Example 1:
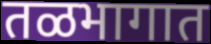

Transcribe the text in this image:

तळभागात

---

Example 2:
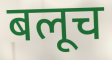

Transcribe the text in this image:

बलूच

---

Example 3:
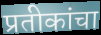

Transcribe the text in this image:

प्रतीकांचा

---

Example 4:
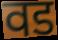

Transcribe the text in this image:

वड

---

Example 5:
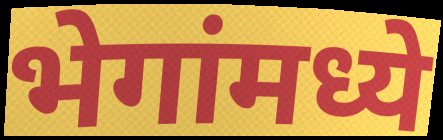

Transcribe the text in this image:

भेगांमध्ये